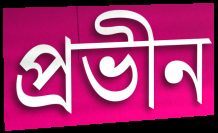
প্রভীন